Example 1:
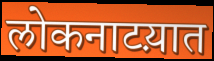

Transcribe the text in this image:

लोकनाटय़ात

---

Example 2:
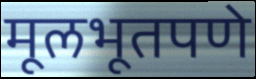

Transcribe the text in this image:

मूलभूतपणे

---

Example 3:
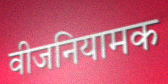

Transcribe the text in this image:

वीजनियामक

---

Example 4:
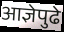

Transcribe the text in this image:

आज्ञेपुढे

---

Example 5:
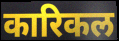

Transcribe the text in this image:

कारिकल